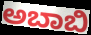
ಅಬಾಬಿ